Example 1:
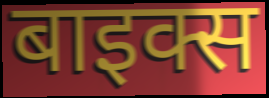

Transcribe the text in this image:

बाइक्स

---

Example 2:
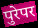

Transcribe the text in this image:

पुरेपर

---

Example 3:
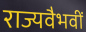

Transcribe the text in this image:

राज्यवैभवीं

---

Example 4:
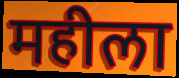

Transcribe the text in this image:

महीला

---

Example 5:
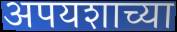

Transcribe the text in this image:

अपयशाच्या